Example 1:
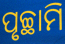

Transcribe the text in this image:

ପୃଚ୍ଛାମି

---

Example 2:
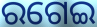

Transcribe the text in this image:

ରଗେଇ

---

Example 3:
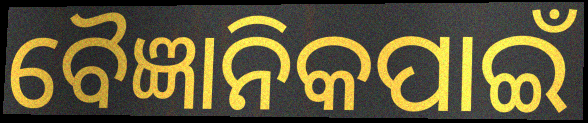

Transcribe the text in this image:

ବୈଜ୍ଞାନିକପାଇଁ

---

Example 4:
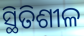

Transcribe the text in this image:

ସ୍ଥିତିଶୀଳ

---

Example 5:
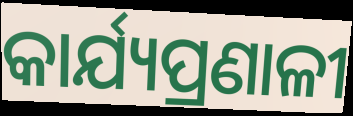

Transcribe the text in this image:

କାର୍ଯ୍ୟପ୍ରଣାଳୀ